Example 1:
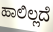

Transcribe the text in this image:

ಹಾಲಿಲ್ಲದೆ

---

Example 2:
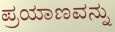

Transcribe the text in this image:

ಪ್ರಯಾಣವನ್ನು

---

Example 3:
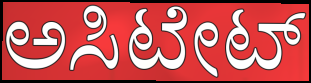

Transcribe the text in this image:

ಅಸಿಟೇಟ್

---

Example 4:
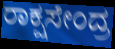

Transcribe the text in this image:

ರಾಕ್ಷಸೇಂದ್ರ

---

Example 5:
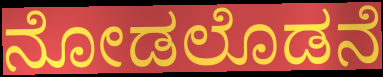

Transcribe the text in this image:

ನೋಡಲೊಡನೆ